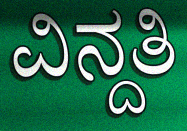
ವಿನ್ದತಿ